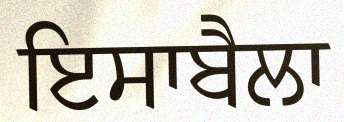
ਇਸਾਬੈਲਾ